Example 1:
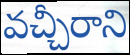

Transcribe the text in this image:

వచ్చీరాని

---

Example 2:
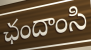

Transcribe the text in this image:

ఛందాంసి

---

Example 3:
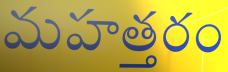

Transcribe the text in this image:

మహత్తరం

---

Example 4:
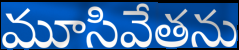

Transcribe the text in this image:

మూసివేతను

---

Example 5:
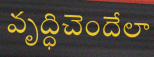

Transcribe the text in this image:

వృద్ధిచెందేలా